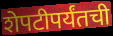
शेपटीपर्यंतची